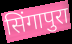
सिंगापुरा